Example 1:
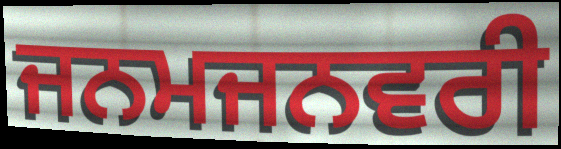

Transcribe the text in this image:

ਜਨਮਜਨਵਰੀ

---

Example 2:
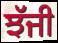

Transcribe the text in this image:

ਝੱਜੀ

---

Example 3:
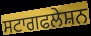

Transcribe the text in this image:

ਸਟਾਗਫਲੇਸ਼ਨ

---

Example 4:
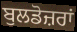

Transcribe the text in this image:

ਬੁਲਡੋਜ਼ਰਾਂ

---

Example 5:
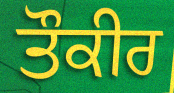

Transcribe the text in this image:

ਤੌਕੀਰ